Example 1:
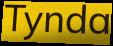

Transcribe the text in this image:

Tynda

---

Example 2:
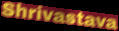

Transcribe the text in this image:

Shrivastava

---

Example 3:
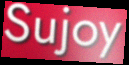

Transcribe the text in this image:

Sujoy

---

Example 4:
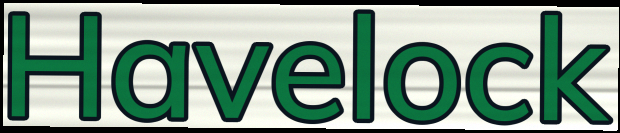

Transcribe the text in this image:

Havelock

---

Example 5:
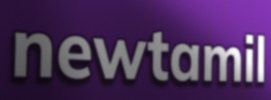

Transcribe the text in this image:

newtamil